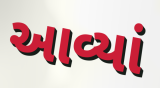
આવ્યાં